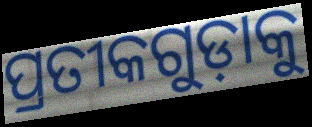
ପ୍ରତୀକଗୁଡ଼ାକୁ